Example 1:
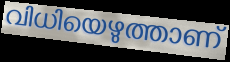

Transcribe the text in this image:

വിധിയെഴുത്താണ്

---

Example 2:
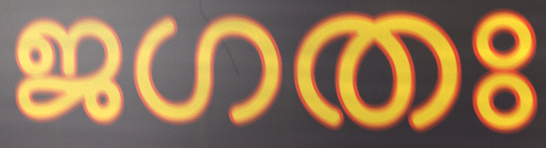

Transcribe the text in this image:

ജഗതഃ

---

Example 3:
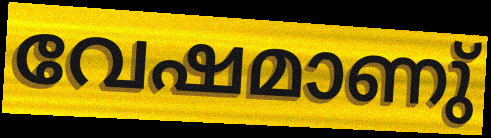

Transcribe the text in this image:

വേഷമാണു്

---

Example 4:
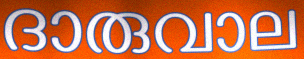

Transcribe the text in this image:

ദാരുവാല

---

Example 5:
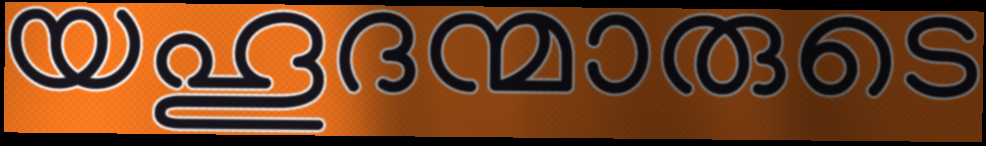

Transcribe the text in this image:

യഹൂദന്മാരുടെ